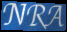
NRA